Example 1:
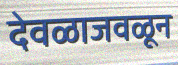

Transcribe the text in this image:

देवळाजवळून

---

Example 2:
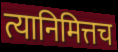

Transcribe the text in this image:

त्यानिमित्तच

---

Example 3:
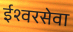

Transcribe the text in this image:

ईश्वरसेवा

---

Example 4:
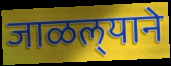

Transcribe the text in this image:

जाळल्याने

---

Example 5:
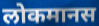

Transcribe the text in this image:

लोकमानस